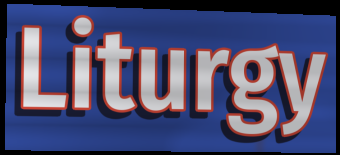
Liturgy